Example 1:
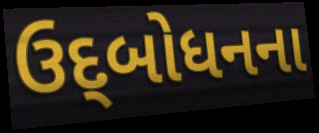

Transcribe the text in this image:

ઉદ્‌બોધનના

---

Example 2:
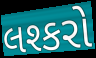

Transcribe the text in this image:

લશ્કરો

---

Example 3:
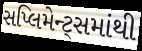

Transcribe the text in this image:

સપ્લિમેન્ટ્સમાંથી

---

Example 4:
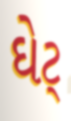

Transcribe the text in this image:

ઘેટ્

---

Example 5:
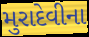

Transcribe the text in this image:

મુરાદેવીના